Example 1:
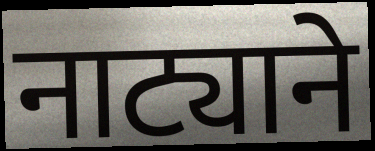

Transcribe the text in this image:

नाट्याने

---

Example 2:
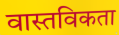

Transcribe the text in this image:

वास्तविकता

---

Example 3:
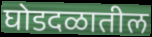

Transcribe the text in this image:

घोडदळातील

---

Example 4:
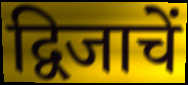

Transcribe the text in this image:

द्विजाचें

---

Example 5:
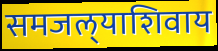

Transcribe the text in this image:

समजल्याशिवाय